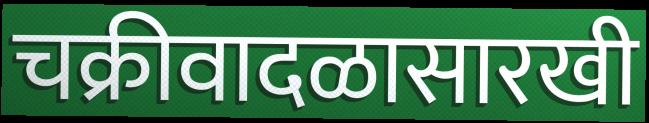
चक्रीवादळासारखी